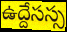
ఉద్దేసస్స